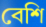
বেশি